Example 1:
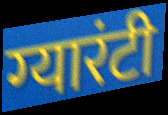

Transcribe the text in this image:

ग्‍यारंटी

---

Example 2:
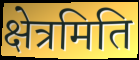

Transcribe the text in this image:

क्षेत्रमिति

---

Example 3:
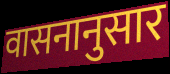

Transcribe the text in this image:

वासनानुसार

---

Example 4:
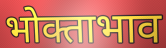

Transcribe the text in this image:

भोक्ताभाव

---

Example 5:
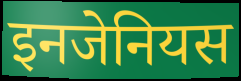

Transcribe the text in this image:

इनजेनियस